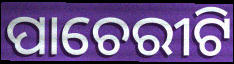
ପାଚେରୀଟି